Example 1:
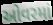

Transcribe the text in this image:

ઓવરમાં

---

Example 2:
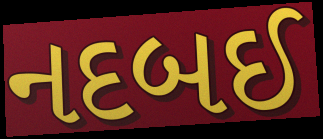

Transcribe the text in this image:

નદબઈ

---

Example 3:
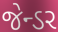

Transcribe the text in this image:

જેન્ડર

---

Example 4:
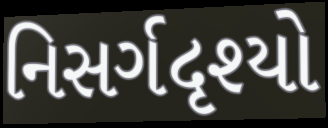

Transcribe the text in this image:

નિસર્ગદૃશ્યો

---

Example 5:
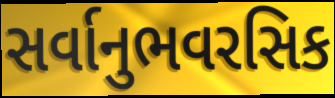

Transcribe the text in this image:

સર્વાનુભવરસિક